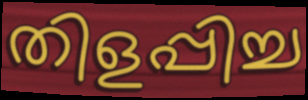
തിളപ്പിച്ച